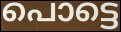
പൊട്ടെ